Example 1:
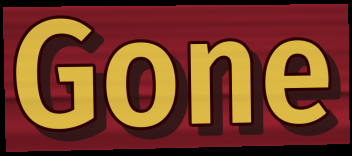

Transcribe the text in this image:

Gone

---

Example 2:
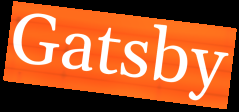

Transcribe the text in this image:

Gatsby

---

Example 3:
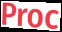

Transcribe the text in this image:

Proc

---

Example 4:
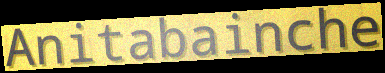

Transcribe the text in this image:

Anitabainche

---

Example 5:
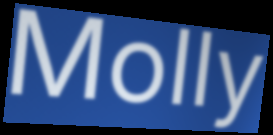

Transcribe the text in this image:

Molly